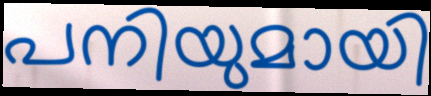
പനിയുമായി